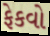
ફેકવો